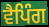
ਵੈਪਿੰਗ